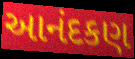
આનંદકણ